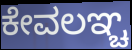
ಕೇವಲಞ್ಚ